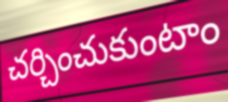
చర్చించుకుంటాం